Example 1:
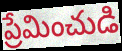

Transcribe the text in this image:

ప్రేమించుడి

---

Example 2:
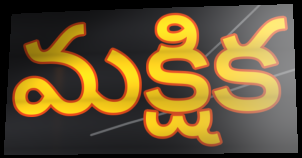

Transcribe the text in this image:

మక్షిక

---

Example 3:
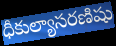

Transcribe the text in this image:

ధీకుల్యాసరణిషు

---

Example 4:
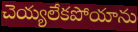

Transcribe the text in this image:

చెయ్యలేకపోయాను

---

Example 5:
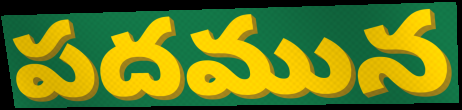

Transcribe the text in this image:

పదమున